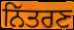
ਨਿੱਤਰਣ